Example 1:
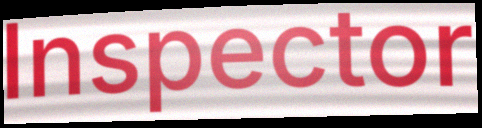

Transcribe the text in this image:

Inspector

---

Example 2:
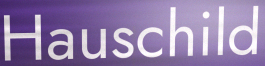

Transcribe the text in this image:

Hauschild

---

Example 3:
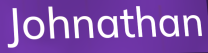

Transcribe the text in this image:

Johnathan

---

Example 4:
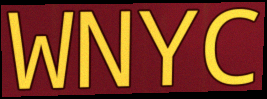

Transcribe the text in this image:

WNYC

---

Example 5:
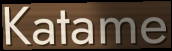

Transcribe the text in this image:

Katame